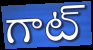
గాట్